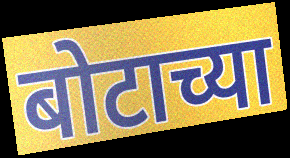
बोटाच्या